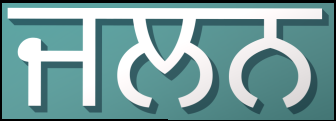
ਜਲਨ